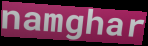
namghar